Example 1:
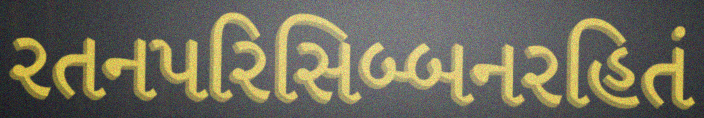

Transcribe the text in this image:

રતનપરિસિબ્બનરહિતં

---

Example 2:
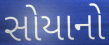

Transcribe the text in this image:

સોયાનો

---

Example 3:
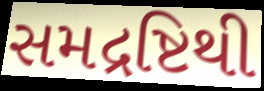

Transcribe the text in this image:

સમદ્રષ્ટિથી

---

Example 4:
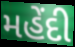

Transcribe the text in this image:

મહેંદી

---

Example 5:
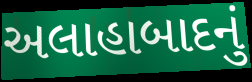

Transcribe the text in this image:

અલાહાબાદનું